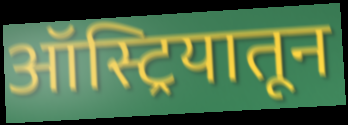
ऑस्ट्रियातून